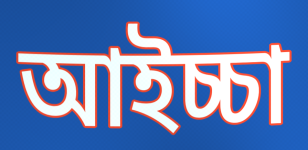
আইচ্চা